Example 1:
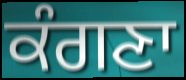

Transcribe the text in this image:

ਕੰਗਣਾ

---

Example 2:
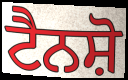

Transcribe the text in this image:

ਟੈਨਸ਼ੋ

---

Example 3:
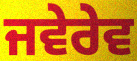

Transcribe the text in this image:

ਜਵੇਰੇਵ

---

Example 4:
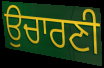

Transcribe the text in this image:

ਉਚਾਰਣੀ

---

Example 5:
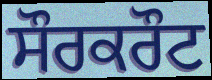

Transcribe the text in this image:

ਸੌਰਕਰੌਟ